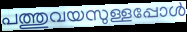
പത്തുവയസുള്ളപ്പോൾ